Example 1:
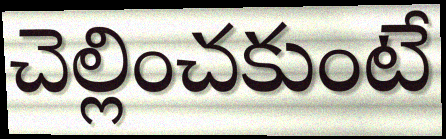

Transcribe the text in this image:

చెల్లించకుంటే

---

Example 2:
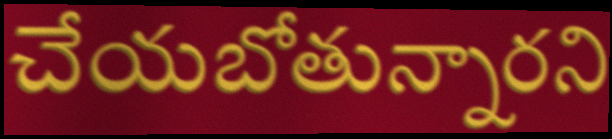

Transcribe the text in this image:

చేయబోతున్నారని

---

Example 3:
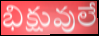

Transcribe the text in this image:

భిక్షువులే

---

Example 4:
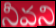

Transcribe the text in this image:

నీవని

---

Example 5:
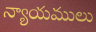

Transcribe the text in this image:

న్యాయములు